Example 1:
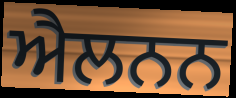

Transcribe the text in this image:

ਐਲਨਨ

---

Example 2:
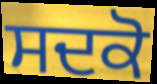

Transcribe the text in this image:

ਸਦਕੋ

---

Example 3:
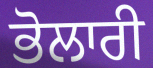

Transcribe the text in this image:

ਭੋਲਾਰੀ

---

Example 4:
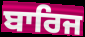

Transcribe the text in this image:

ਬਾਰਿਜ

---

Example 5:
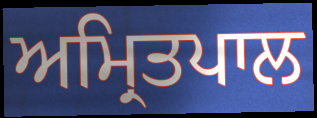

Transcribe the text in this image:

ਅਮ੍ਰਿਤਪਾਲ